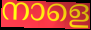
നാളെ